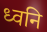
ध्वनि